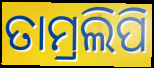
ତାମ୍ରଲିପି